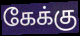
கேக்கு